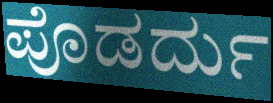
ಪೊಡರ್ದು